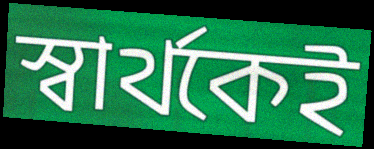
স্বার্থকেই